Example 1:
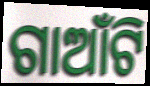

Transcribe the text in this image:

ଗାଆଁଟି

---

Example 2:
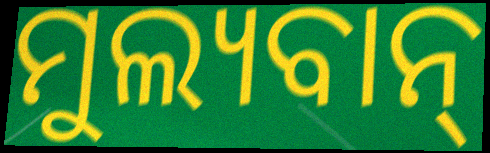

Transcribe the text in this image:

ମୁଲ୍ୟବାନ୍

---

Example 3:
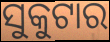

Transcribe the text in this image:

ସୁକୁଟାର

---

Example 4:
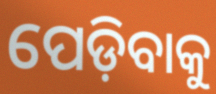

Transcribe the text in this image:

ପେଡ଼ିବାକୁ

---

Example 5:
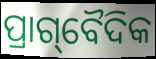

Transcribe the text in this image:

ପ୍ରାଗ୍‌ବୈଦିକ